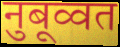
नुबूव्वत